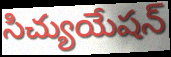
సిచ్యుయేషన్